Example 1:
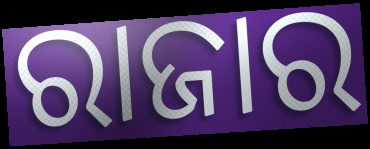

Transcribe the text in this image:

ରାଜାର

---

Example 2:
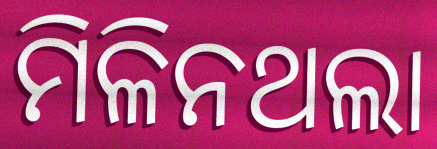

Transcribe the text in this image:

ମିଳିନଥଲା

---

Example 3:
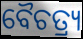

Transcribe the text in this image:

ବୈଚତ୍ର୍ୟ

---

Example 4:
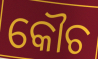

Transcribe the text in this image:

କୌଚ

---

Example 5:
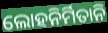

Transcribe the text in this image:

ଲୋହନିର୍ମିତାନି